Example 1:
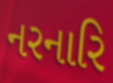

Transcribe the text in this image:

નરનારિ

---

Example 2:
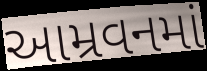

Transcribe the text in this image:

આમ્રવનમાં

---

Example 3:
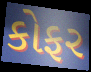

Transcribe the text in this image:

કોફર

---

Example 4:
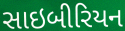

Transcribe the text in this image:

સાઇબીરિયન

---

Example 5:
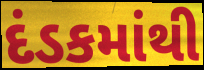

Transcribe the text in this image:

દંડકમાંથી